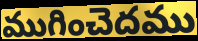
ముగించెదము